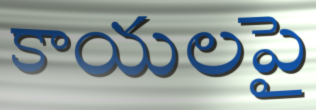
కాయలపై